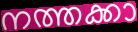
നത്തക്കാ